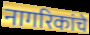
नागरिकांचे